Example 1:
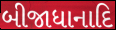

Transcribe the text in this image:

બીજાધાનાદિ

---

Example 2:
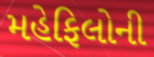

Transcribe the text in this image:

મહેફિલોની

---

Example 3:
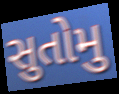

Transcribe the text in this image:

સુતોમુ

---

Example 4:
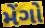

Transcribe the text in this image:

મેંગો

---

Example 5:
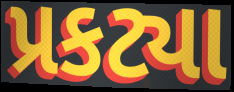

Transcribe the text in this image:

પ્રકટ્યા